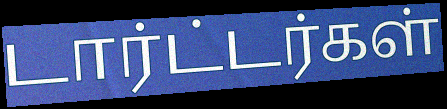
டார்ட்டர்கள்